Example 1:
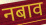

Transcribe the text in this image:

नबाव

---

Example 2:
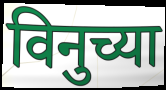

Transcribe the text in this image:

विनुच्या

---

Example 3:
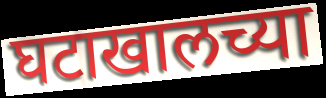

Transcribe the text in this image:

घटाखालच्या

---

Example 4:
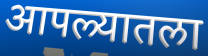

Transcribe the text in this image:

आपल्यातला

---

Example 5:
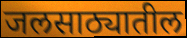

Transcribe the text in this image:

जलसाठ्यातील